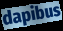
dapibus